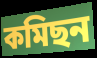
কমিছন